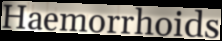
Haemorrhoids